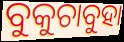
ବୁକୁଚାବୁହା